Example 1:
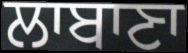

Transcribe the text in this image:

ਲਾਬਾਣਾ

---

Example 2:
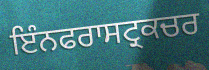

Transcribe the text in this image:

ਇੰਨਫਰਾਸਟ੍ਰਕਚਰ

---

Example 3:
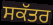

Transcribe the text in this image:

ਸਕੱਤਰ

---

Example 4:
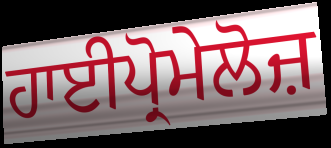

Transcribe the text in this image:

ਹਾਈਪ੍ਰੋਮੇਲੋਜ਼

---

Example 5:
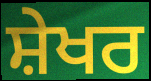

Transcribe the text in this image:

ਸ਼ੇਖਰ